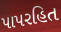
પાપરહિત